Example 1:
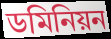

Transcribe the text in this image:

ডমিনিয়ন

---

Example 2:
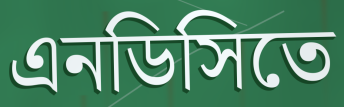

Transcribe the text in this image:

এনডিসিতে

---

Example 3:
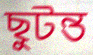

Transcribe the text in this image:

ছুটন্ত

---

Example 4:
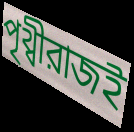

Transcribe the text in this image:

পৃথ্বীরাজই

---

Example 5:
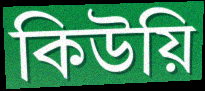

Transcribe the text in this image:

কিউয়ি